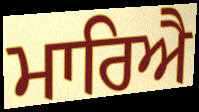
ਮਾਰਿਐ